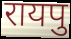
रायपु